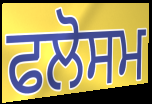
ਫਲੋਸਮ